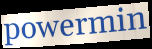
powermin